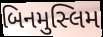
બિનમુસ્લિમ